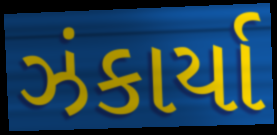
ઝંકાર્યા